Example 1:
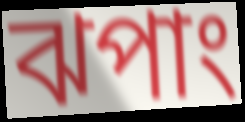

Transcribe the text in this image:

ঝপাং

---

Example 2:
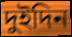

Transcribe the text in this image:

দুইদিন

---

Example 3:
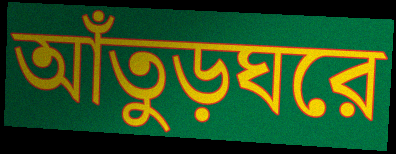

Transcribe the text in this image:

আঁতুড়ঘরে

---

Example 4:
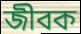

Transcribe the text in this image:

জীবক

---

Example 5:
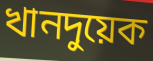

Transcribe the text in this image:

খানদুয়েক